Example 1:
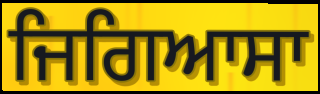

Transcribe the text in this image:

ਜਿਗਿਆਸਾ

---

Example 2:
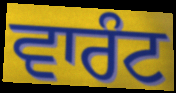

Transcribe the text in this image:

ਵਾਰੰਟ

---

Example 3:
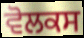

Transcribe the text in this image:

ਵੋਲਕਸ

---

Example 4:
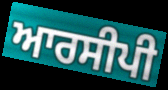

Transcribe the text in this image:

ਆਰਸੀਪੀ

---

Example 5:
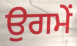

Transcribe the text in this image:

ਉਗਮੇਂ